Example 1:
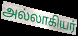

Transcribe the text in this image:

அல்லாகியர்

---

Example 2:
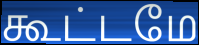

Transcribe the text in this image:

கூட்டமே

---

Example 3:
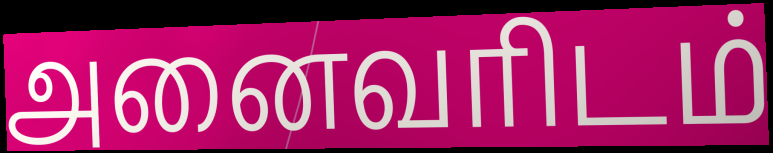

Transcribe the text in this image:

அனைவரிடம்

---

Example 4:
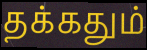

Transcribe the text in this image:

தக்கதும்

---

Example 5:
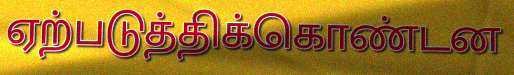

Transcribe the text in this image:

ஏற்படுத்திக்கொண்டன